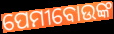
ପେମୀବୋଉଙ୍କ